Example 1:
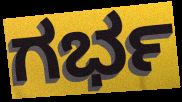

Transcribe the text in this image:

ಗರ್ಭ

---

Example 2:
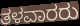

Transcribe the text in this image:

ತಳವಾರರು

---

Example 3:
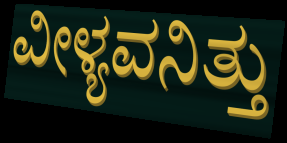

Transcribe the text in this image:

ವೀಳ್ಯವನಿತ್ತು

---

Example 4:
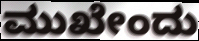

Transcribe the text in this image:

ಮುಖೇಂದು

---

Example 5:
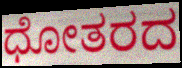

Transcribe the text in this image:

ಧೋತರದ